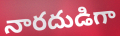
నారదుడిగా